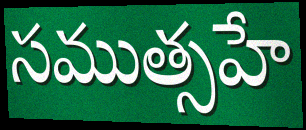
సముత్సహే